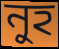
নুহ